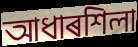
আধাৰশিলা